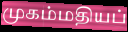
முகம்மதியப்